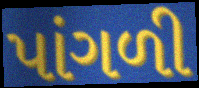
પાંગળી